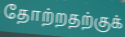
தோற்றதற்குக்